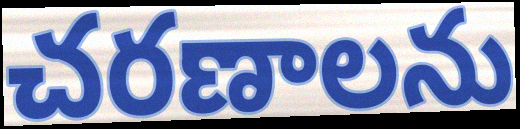
చరణాలను